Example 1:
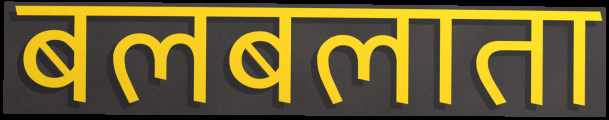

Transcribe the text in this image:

बलबलाता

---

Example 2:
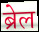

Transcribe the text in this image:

ब्रेल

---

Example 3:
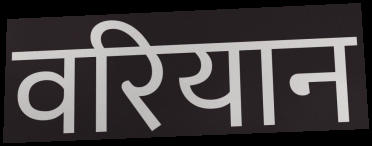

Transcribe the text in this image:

वरियान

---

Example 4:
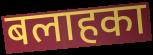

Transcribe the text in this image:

बलाहका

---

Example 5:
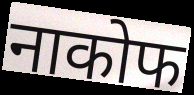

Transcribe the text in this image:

नाकोफ